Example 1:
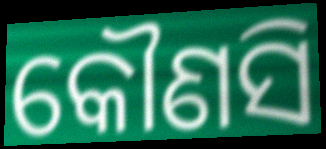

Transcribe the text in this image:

କୌଣସି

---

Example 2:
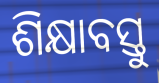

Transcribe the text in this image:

ଶିକ୍ଷାବସ୍ତୁ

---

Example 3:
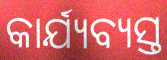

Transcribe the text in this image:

କାର୍ଯ୍ୟବ୍ୟସ୍ତ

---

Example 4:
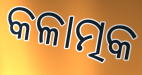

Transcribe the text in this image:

କଳାତ୍ମକ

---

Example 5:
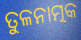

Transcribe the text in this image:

ତୁଳନାତ୍ମକ